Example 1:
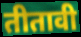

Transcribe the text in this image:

तीतावी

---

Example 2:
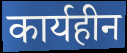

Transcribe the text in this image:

कार्यहीन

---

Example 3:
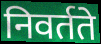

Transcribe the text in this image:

निवर्तते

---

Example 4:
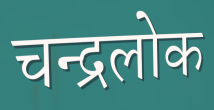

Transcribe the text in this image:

चन्द्रलोक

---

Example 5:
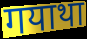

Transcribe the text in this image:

गयाथा